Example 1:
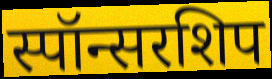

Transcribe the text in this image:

स्पॉन्सरशिप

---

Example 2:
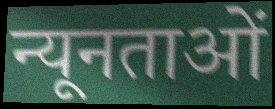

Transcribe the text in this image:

न्यूनताओं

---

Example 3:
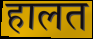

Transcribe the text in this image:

हालत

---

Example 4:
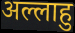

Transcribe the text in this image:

अल्लाहु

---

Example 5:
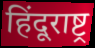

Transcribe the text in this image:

हिंदूराष्ट्र